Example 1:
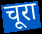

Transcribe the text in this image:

चूरा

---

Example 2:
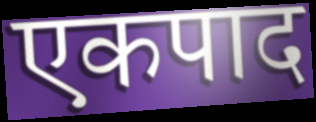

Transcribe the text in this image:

एकपाद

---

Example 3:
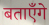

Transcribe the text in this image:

बताएँगे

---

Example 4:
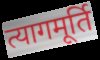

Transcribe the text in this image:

त्यागमूर्ति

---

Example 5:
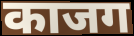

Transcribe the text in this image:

काजग